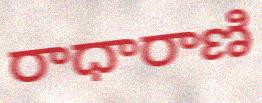
రాధారాణి